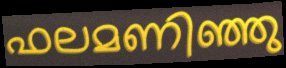
ഫലമണിഞ്ഞു